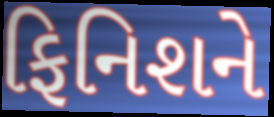
ફિનિશને